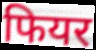
फियर